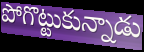
పోగొట్టుకున్నాడు